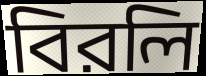
বিরলি